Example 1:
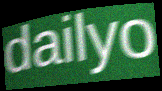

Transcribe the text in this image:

dailyo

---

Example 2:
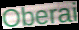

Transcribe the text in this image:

Oberai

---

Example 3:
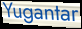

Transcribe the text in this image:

Yugantar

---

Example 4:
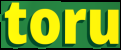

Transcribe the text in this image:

toru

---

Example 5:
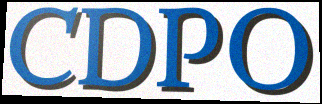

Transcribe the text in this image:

CDPO